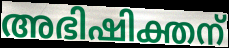
അഭിഷിക്തന്